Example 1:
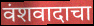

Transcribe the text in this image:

वंशवादाचा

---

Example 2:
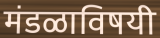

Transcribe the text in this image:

मंडळाविषयी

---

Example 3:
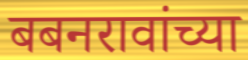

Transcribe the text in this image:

बबनरावांच्या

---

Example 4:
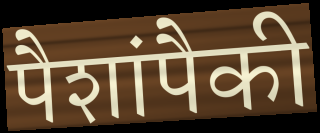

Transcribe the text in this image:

पैशांपैकी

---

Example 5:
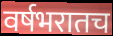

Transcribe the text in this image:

वर्षभरातच